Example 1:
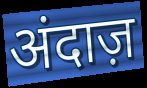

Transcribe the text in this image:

अंदाज़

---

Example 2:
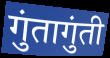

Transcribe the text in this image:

गुंतागुंती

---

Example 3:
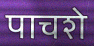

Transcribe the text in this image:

पाचशे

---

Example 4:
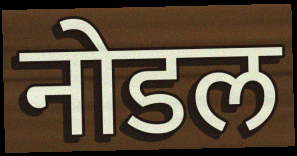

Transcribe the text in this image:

नोडल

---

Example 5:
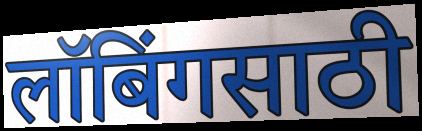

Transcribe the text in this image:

लॉबिंगसाठी